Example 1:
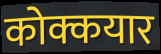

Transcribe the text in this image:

कोक्कयार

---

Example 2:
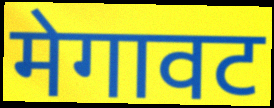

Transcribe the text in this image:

मेगावट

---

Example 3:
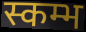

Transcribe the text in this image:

स्कम्भ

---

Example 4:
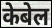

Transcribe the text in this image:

केबेल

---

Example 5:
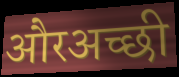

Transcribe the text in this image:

औरअच्छी